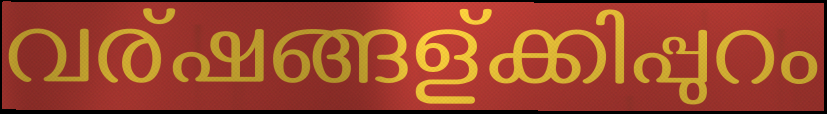
വര്ഷങ്ങള്ക്കിപ്പുറം